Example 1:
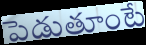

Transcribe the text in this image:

పెడుతూంటే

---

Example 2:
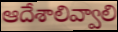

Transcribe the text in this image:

ఆదేశాలివ్వాలి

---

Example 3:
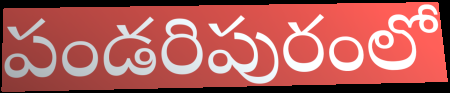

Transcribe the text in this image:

పండరిపురంలో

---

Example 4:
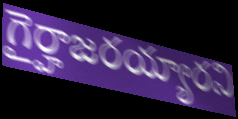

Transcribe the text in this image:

గైర్హాజరయ్యారని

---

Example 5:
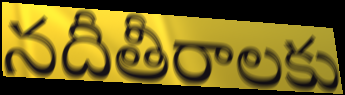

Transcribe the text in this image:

నదీతీరాలకు